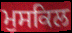
ਮੁਸਕਿਲ